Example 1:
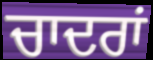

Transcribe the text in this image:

ਚਾਦਰਾਂ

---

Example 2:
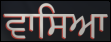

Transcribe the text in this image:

ਵਾਸਿਆ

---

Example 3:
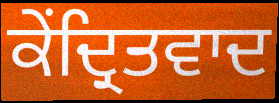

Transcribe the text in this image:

ਕੇਂਦ੍ਰਿਤਵਾਦ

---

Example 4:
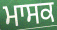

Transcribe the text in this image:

ਮਾਸਕ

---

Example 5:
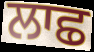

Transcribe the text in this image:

ਲਾਛ